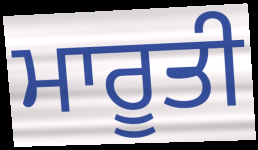
ਮਾਰੂਤੀ